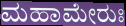
ಮಹಾಮೇರುಃ